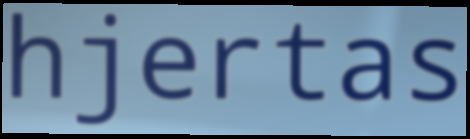
hjertas